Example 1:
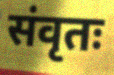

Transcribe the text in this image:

संवृतः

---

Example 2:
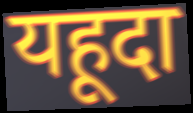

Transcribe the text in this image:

यहूदा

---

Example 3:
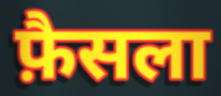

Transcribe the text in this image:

फ़ैसला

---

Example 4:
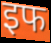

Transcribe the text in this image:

इफ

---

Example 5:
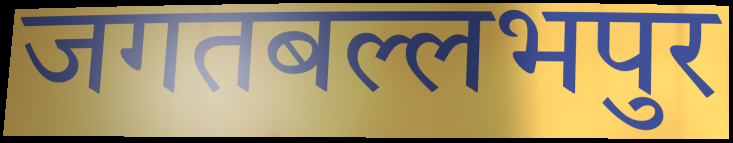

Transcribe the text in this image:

जगतबल्लभपुर